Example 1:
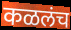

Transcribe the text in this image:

कळलंच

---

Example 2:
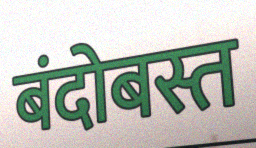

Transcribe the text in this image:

बंदोबस्त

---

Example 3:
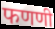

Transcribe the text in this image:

फणणी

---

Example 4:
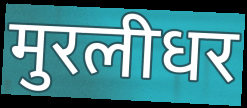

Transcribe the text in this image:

मुरलीधर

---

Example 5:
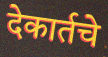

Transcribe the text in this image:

देकार्तचे